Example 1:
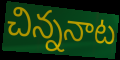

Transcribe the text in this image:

చిన్ననాట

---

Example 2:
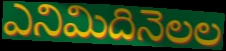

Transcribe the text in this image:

ఎనిమిదినెలల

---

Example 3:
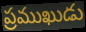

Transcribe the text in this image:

ప్రముఖుడు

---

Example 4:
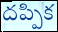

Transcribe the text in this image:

దప్పిక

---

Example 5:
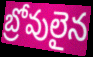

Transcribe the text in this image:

బ్రోవులైన